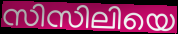
സിസിലിയെ